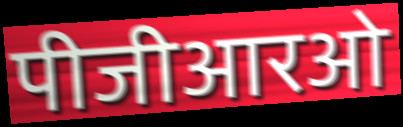
पीजीआरओ